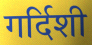
गर्दिशी